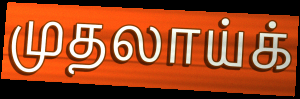
முதலாய்க்